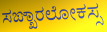
ಸಙ್ಖಾರಲೋಕಸ್ಸ